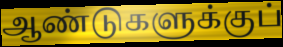
ஆண்டுகளுக்குப்